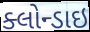
ક્લોન્ડાઇ